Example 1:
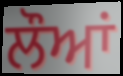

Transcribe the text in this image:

ਲੌਆਂ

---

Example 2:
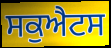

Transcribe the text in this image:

ਸਕੁਐਟਸ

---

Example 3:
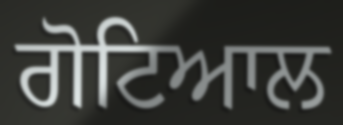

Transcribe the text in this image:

ਗੋਟਿਆਲ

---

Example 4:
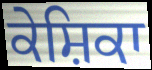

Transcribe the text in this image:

ਕੇਸ਼ਿਕਾ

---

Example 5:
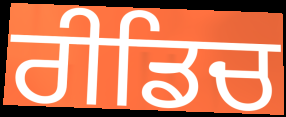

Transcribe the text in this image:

ਰੀਡਿਚ